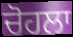
ਚੋਹਲਾ